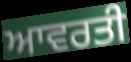
ਆਵਰਤੀ